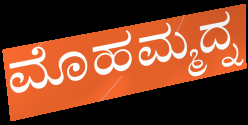
ಮೊಹಮ್ಮದ್ನ